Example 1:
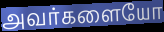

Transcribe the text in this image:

அவர்களையோ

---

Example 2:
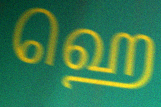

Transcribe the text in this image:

ஹெ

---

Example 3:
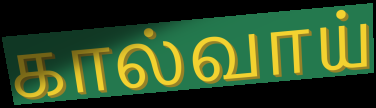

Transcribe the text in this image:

கால்வாய்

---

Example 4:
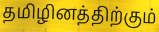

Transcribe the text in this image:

தமிழினத்திற்கும்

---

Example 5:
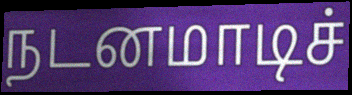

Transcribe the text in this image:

நடனமாடிச்